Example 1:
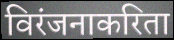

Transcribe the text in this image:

विरंजनाकरिता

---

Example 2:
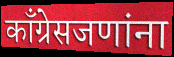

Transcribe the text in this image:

काँग्रेसजणांना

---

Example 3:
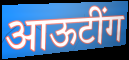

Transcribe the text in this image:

आऊटींग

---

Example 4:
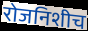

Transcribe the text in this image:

रोजनिशीच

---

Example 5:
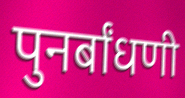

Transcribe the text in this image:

पुनर्बांधणी